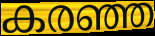
കരഞ്ഞ